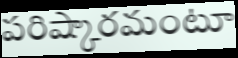
పరిష్కారమంటూ